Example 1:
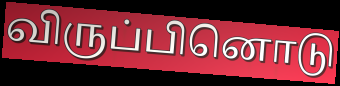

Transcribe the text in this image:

விருப்பினொடு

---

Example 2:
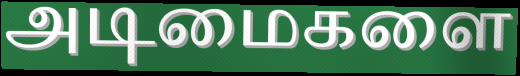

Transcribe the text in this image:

அடிமைகளை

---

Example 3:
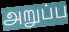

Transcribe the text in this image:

அறுப்ப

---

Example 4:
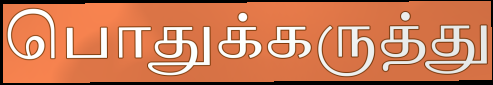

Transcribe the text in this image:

பொதுக்கருத்து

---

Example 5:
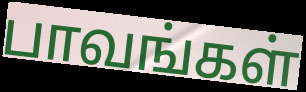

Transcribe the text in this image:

பாவங்கள்